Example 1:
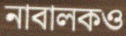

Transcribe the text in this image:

নাবালকও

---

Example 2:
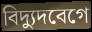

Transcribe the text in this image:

বিদ্যুদবেগে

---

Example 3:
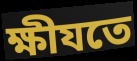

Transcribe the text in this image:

ক্ষীযতে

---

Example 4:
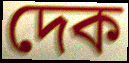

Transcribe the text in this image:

দেক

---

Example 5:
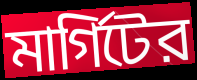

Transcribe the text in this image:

মার্গিটের